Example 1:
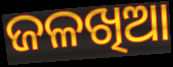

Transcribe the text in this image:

ଜଳଖିଆ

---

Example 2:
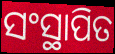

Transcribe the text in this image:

ସଂସ୍ଥାପିତ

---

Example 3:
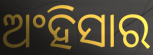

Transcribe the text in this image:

ଅଂହିସାର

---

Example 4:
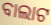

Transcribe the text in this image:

ବାଲାଟ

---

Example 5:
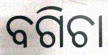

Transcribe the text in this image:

ବଗିଚା